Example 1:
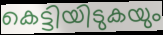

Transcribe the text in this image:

കെട്ടിയിടുകയും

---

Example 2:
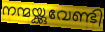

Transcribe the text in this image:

നന്മയ്ക്കുവേണ്ടി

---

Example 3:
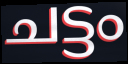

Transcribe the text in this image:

ചട്ടം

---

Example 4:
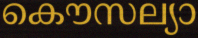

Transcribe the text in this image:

കൌസല്യാ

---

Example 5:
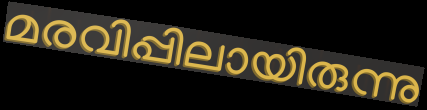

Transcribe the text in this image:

മരവിപ്പിലായിരുന്നു